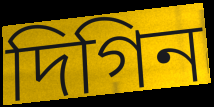
দিগিন